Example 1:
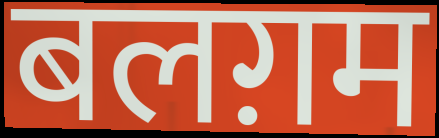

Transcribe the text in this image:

बलग़म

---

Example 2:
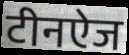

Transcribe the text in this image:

टीनऐज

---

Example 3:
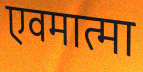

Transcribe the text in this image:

एवमात्मा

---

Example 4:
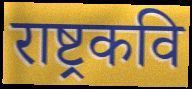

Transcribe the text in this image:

राष्ट्रकवि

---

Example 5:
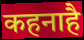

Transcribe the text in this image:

कहनाहै